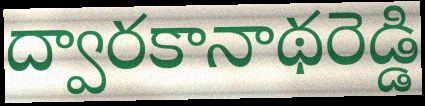
ద్వారకానాథరెడ్డి